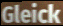
Gleick